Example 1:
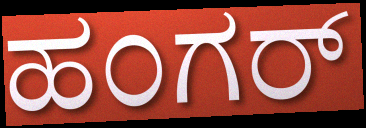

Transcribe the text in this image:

ಹಂಗರ್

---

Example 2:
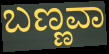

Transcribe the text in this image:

ಬಣ್ಣವಾ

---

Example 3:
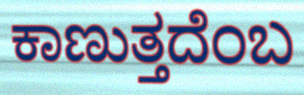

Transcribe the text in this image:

ಕಾಣುತ್ತದೆಂಬ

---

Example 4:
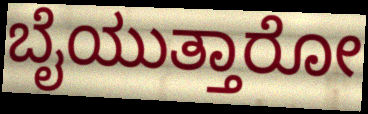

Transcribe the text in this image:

ಬೈಯುತ್ತಾರೋ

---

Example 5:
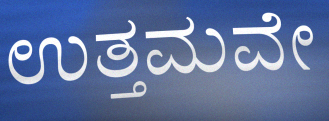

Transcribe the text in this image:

ಉತ್ತಮವೇ